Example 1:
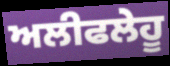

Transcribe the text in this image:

ਅਲੀਫਲੇਹੂ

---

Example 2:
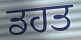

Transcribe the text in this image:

ਡਹਤ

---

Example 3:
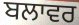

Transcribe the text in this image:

ਬਲਾਵਰ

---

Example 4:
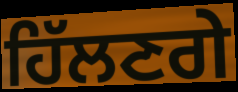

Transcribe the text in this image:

ਹਿੱਲਣਗੇ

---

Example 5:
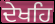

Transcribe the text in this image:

ਦੇਖਹਿ